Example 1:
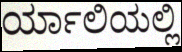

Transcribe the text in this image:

ರ್ಯಾಲಿಯಲ್ಲಿ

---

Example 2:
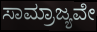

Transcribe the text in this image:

ಸಾಮ್ರಾಜ್ಯವೇ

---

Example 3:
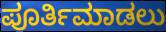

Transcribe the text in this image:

ಪೂರ್ತಿಮಾಡಲು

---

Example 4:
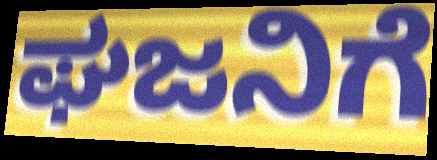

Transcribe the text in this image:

ಘಜನಿಗೆ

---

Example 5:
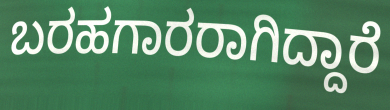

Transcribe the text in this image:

ಬರಹಗಾರರಾಗಿದ್ದಾರೆ